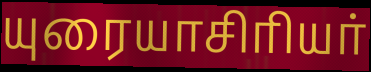
யுரையாசிரியர்